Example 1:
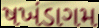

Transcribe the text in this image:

ષખંડાગમ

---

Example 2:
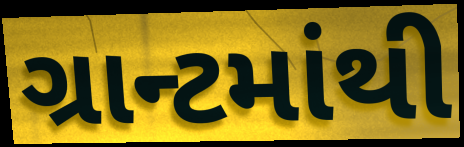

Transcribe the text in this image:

ગ્રાન્ટમાંથી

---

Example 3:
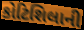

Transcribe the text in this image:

કોટિશિલાની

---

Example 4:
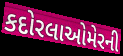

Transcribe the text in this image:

કદોરલાઓમેરની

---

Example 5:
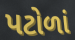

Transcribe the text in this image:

પટોળાં